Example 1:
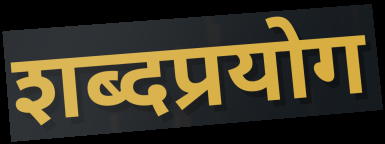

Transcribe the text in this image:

शब्दप्रयोग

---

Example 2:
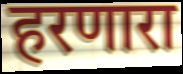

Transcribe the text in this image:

हरणारा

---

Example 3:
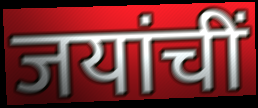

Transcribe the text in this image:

जयांचीं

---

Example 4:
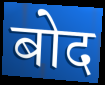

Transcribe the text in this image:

बोद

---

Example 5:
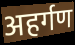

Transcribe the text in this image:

अहर्गण